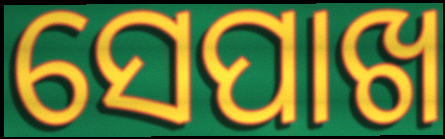
ସେପାଖ